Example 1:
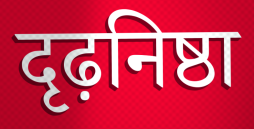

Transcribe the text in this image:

दृढ़निष्ठा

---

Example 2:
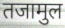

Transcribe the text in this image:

तजामुल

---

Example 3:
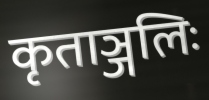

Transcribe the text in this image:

कृताञ्जलिः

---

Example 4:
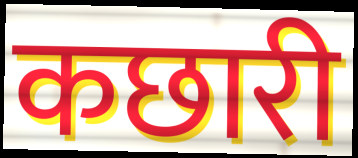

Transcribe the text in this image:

कछारी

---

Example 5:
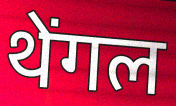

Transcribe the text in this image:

थेंगल